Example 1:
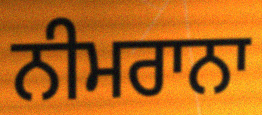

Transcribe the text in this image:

ਨੀਮਰਾਨਾ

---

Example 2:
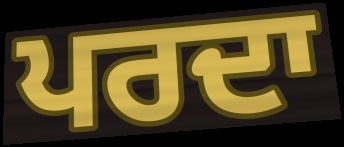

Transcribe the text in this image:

ਪਰਦਾ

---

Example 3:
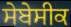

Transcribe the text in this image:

ਸੇਬੇਸੀਕ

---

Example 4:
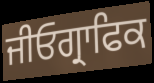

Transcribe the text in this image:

ਜੀਓਗ੍ਰਾਫਿਕ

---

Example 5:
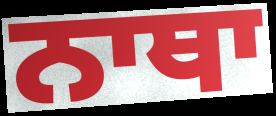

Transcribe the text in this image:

ਨਾਥਾ